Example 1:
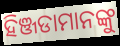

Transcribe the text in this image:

ହିଞ୍ଜଡାମାନଙ୍କୁ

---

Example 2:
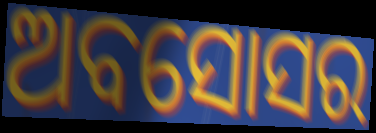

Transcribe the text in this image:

ଅବସୋସର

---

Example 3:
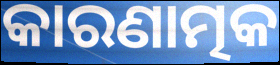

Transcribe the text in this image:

କାରଣାତ୍ମକ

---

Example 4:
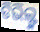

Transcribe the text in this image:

ଡିଭିଲ୍ଙ୍କ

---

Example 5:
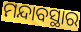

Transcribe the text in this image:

ମନ୍ଦାବସ୍ଥାର